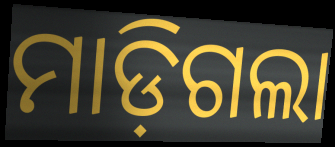
ମାଡ଼ିଗଲା